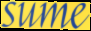
sume